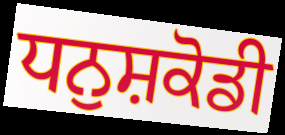
ਧਨੁਸ਼ਕੋਡੀ